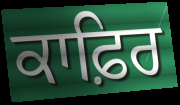
ਕਾਫ਼ਿਰ